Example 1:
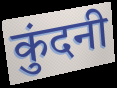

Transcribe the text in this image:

कुंदनी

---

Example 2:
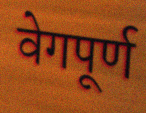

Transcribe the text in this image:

वेगपूर्ण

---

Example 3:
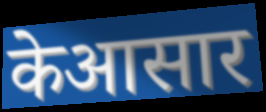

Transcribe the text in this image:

केआसार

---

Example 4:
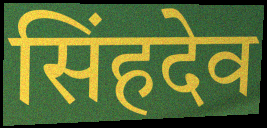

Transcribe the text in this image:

सिंहदेव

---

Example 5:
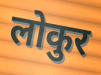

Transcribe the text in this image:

लोकुर